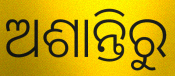
ଅଶାନ୍ତିରୁ